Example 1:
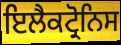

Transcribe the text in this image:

ਇਲੈਕਟ੍ਰੋਨਿਸ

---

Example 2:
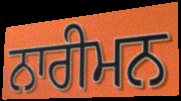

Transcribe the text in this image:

ਨਾਰੀਮਨ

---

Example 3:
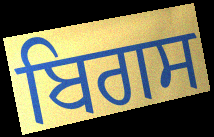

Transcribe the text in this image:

ਬਿਗਸ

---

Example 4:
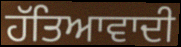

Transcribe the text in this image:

ਹੱਤਿਆਵਾਦੀ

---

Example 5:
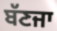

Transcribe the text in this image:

ਬੱਣਜਾ